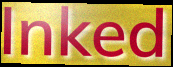
Inked